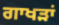
ਗਾਖੜਾਂ